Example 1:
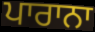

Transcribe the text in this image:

ਪਾਰਾਨਾ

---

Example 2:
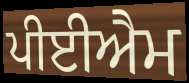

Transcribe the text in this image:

ਪੀਈਐਮ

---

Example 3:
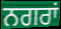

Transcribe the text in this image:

ਨਗਰਾਂ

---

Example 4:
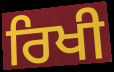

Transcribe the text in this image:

ਰਿਖੀ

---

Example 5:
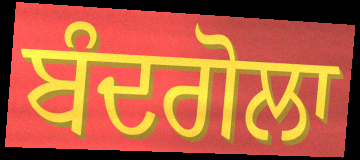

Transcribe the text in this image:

ਬੰਦਗੋਲਾ